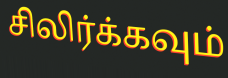
சிலிர்க்கவும்